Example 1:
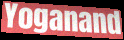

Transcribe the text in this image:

Yoganand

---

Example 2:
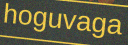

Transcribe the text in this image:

hoguvaga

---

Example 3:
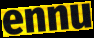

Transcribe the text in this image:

ennu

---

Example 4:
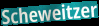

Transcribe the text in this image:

Scheweitzer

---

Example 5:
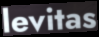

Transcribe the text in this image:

levitas